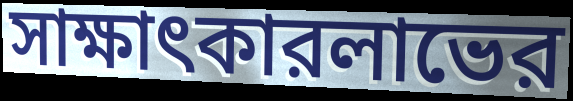
সাক্ষাৎকারলাভের